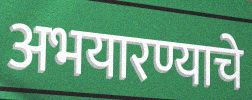
अभयारण्याचे